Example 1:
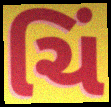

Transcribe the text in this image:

ચિં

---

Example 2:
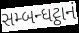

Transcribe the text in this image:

સમ્બન્ધટ્ઠાનં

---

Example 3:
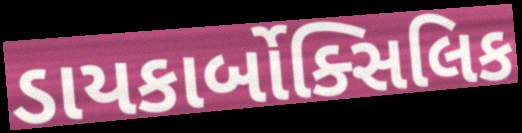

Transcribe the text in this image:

ડાયકાર્બોક્સિલિક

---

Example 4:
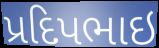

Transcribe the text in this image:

પ્રદિપભાઇ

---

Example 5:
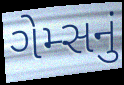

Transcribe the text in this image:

ગેમ્સનું